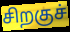
சிறகுச்